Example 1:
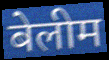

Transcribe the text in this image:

बेलीम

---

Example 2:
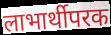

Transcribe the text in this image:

लाभार्थीपरक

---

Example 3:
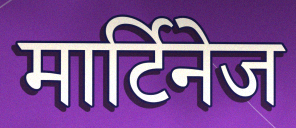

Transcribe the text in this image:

मार्टिनेज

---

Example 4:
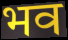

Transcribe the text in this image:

भव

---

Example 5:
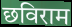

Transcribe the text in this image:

छविराम